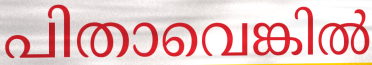
പിതാവെങ്കിൽ